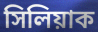
সিলিয়াক